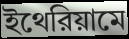
ইথেরিয়ামে